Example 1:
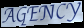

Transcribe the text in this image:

AGENCY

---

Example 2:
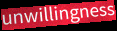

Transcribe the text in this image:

unwillingness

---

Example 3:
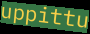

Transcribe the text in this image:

uppittu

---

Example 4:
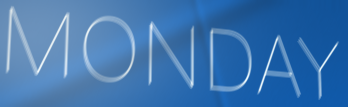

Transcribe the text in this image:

MONDAY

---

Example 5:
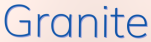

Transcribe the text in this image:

Granite